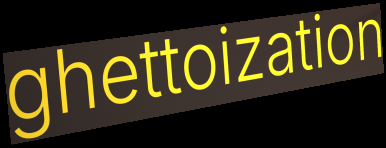
ghettoization